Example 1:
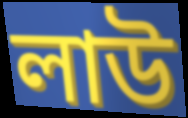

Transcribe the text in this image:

লাউ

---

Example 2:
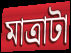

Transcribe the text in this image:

মাত্রাটা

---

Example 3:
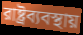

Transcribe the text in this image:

রাষ্ট্রব্যবস্থায়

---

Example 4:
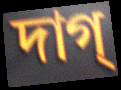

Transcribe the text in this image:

দাগ্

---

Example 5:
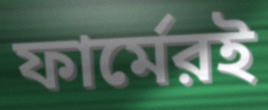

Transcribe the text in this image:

ফার্মেরই